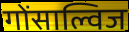
गोंसाल्विज